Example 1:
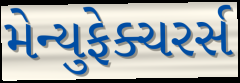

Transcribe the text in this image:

મેન્યુફેક્ચરર્સ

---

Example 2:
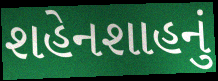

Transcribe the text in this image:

શહેનશાહનું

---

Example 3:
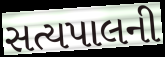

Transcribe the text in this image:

સત્યપાલની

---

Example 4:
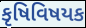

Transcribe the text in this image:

કૃષિવિષયક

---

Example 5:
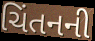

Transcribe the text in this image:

ચિંતનની